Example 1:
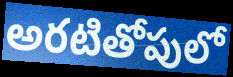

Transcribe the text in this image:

అరటితోపులో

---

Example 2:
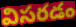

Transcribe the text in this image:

విసరడం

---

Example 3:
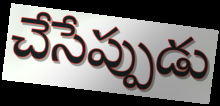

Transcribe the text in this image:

చేసేప్పుడు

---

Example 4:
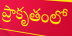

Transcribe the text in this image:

ప్రాకృతంలో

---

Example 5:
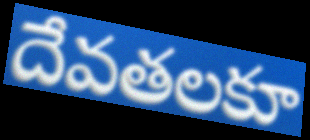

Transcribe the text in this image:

దేవతలకూ